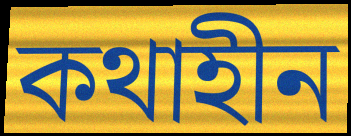
কথাহীন